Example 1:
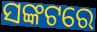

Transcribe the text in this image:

ସଙ୍କଟରେ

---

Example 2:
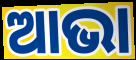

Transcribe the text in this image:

ଆଭା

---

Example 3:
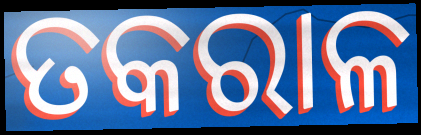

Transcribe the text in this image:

ତକରାଳ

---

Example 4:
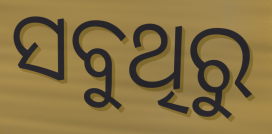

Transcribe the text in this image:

ସବୁଥିରୁ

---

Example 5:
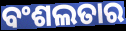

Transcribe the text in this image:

ବଂଶଲତାର